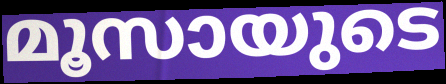
മൂസായുടെ